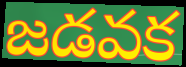
జడవక